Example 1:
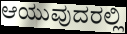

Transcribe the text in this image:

ಆಯುವುದರಲ್ಲಿ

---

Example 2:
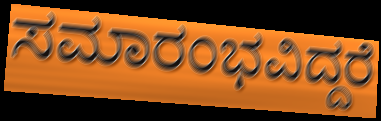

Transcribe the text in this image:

ಸಮಾರಂಭವಿದ್ದರೆ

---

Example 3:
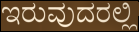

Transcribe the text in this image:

ಇರುವುದರಲ್ಲಿ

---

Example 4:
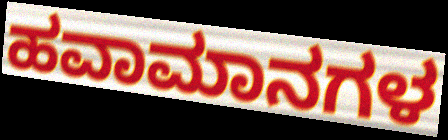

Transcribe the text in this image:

ಹವಾಮಾನಗಳ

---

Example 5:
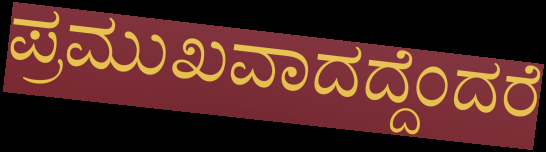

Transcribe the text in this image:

ಪ್ರಮುಖವಾದದ್ದೆಂದರೆ